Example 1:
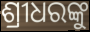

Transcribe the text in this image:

ଶ୍ରୀଧରଙ୍କୁ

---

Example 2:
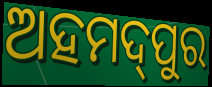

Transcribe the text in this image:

ଅହମଦ୍‌ପୁର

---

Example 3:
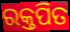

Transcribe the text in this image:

ରକ୍ତପିତ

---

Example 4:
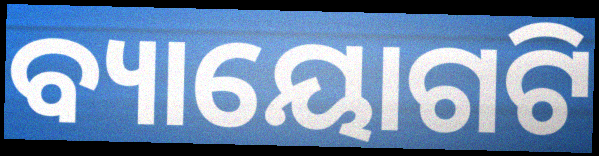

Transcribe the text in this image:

ବ୍ୟାୟୋଗଟି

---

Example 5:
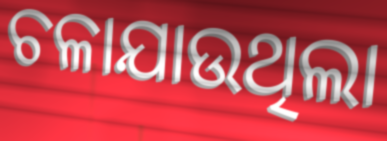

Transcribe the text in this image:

ଚଳାଯାଉଥିଲା